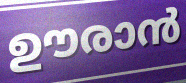
ഊരാൻ